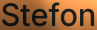
Stefon